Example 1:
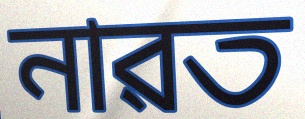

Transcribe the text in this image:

নাৱত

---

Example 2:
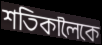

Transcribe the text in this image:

শতিকালৈকে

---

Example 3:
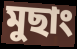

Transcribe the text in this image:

মুছাং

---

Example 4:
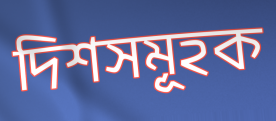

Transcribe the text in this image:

দিশসমূহক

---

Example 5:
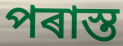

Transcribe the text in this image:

পৰাস্ত